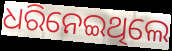
ଧରିନେଇଥିଲେ